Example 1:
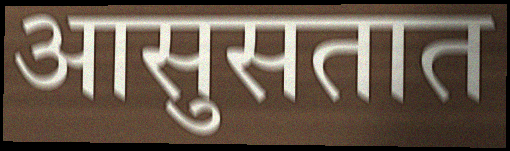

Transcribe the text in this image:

आसुसतात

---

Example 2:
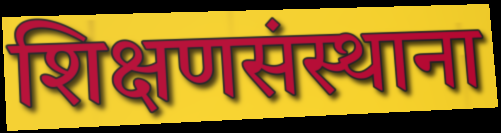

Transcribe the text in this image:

शिक्षणसंस्थाना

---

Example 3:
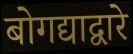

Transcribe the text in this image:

बोगद्याद्वारे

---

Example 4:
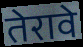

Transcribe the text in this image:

तेरावे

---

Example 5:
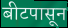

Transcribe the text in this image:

बीटपासून